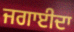
ਜਗਾਈਦਾ